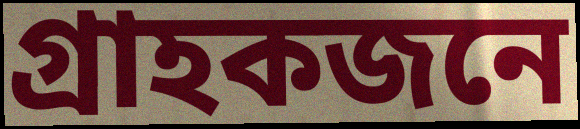
গ্ৰাহকজনে